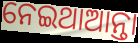
ନେଇଥାଆନ୍ତା